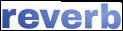
reverb